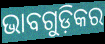
ଭାବଗୁଡ଼ିକର